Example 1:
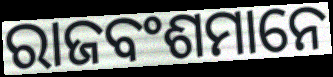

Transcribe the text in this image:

ରାଜବଂଶମାନେ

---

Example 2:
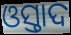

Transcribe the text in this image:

ଓସ୍ତାଦ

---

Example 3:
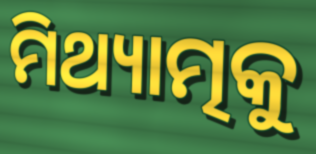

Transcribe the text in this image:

ମିଥ୍ୟାତ୍ମକୁ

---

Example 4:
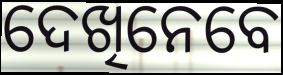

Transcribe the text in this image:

ଦେଖିନେବେ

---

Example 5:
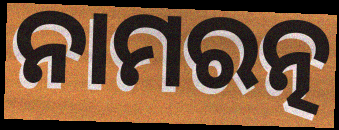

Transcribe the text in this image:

ନାମରତ୍ନ